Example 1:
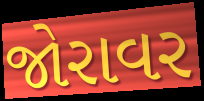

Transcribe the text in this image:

જોરાવર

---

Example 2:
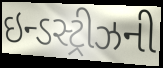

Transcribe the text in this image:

ઇન્ડસ્ટ્રીઝની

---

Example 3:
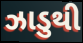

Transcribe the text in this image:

ઝાડુથી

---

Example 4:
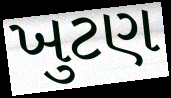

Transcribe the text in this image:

ખુટણ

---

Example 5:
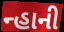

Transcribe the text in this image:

ન્હાની